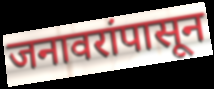
जनावरांपासून